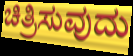
ಚಿತ್ರಿಸುವುದು